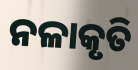
ନଳାକୃତି